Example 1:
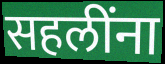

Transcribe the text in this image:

सहलींना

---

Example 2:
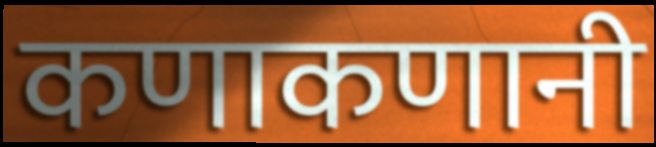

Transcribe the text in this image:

कणाकणानी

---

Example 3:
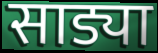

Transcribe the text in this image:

साड्या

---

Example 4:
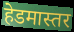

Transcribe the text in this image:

हेडमास्तर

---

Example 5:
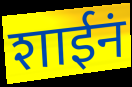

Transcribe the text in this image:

शाईनं